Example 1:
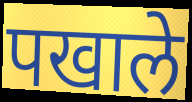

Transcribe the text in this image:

पखाले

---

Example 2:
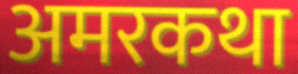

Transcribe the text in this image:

अमरकथा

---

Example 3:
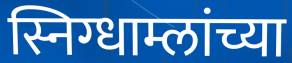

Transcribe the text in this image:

स्निग्धाम्लांच्या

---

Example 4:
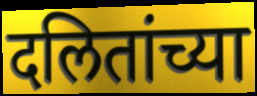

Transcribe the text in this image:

दलितांच्या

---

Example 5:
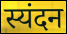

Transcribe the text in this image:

स्यंदन